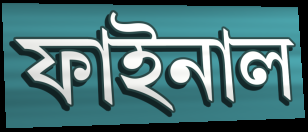
ফাইনাল